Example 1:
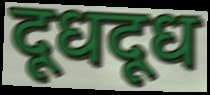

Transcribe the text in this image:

दूधदूध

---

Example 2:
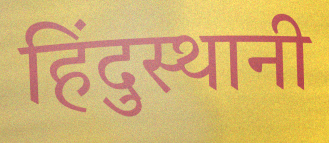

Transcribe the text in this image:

हिंदुस्थानी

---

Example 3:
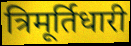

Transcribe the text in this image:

त्रिमूर्तिधारी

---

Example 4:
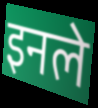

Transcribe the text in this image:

इनले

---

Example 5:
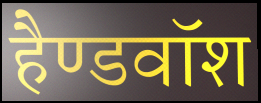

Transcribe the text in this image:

हैण्डवॉश